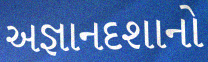
અજ્ઞાનદશાનો